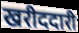
खरीददारी